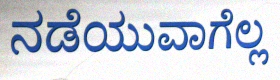
ನಡೆಯುವಾಗೆಲ್ಲ